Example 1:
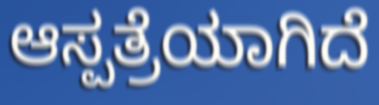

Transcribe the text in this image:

ಆಸ್ಪತ್ರೆಯಾಗಿದೆ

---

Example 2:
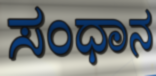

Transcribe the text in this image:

ಸಂಧಾನ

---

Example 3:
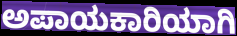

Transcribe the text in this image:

ಅಪಾಯಕಾರಿಯಾಗಿ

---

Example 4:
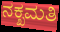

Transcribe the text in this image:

ನಕ್ಖಮತಿ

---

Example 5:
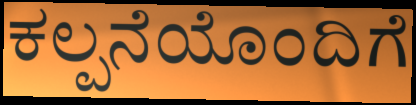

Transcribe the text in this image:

ಕಲ್ಪನೆಯೊಂದಿಗೆ